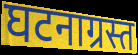
घटनाग्रस्त